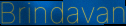
Brindavan